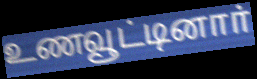
உணவூட்டினார்